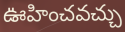
ఊహించవచ్చు